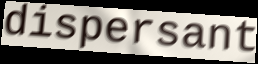
dispersant